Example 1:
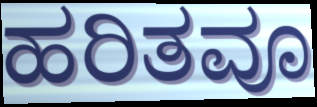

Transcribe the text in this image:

ಹರಿತವೂ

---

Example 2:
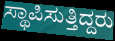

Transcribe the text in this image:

ಸ್ಥಾಪಿಸುತ್ತಿದ್ದರು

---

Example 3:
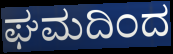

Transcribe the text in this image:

ಘಮದಿಂದ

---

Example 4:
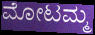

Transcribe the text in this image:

ಮೋಟಮ್ಮ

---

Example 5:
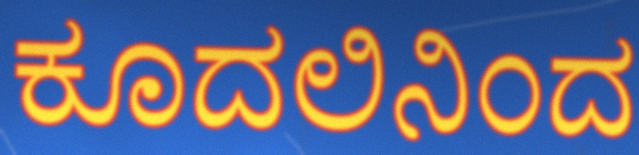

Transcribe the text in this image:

ಕೂದಲಿನಿಂದ